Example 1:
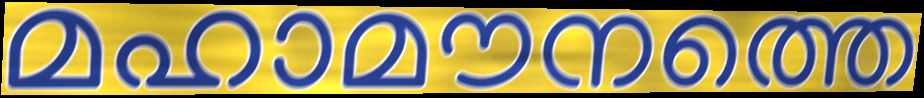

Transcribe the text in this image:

മഹാമൗനത്തെ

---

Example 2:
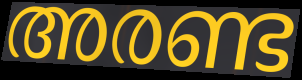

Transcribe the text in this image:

അരണ്ട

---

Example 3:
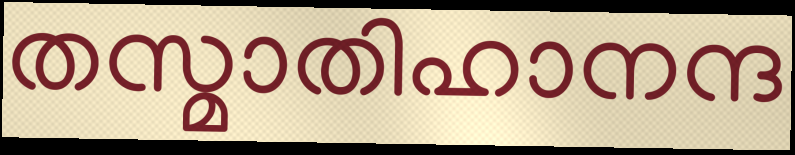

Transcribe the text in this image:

തസ്മാതിഹാനന്ദ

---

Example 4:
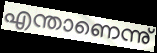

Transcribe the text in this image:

എന്താണെന്നു്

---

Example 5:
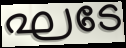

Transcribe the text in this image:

ഘടേ